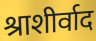
श्राशीर्वाद